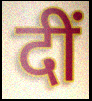
दीं